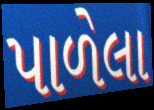
પાળેલા